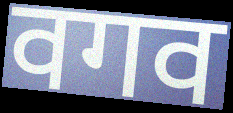
वगव